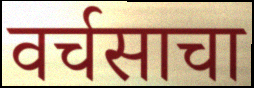
वर्चसाचा